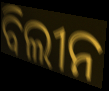
ବିଲୀନ